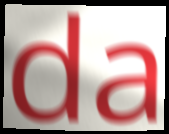
da